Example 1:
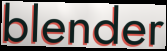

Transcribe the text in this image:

blender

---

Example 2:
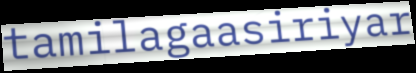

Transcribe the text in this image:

tamilagaasiriyar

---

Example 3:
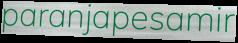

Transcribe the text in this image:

paranjapesamir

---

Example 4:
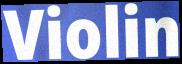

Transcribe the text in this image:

Violin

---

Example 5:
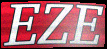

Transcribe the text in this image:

EZE